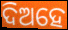
ଦିଅହେ